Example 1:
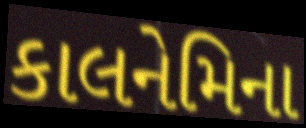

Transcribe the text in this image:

કાલનેમિના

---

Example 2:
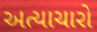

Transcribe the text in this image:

અત્યાચારો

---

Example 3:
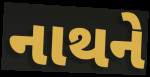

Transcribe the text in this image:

નાથને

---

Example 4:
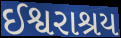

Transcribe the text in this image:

ઈશ્વરાશ્રય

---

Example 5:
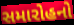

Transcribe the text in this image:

સમારોહનો